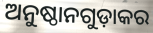
ଅନୁଷ୍ଠାନଗୁଡ଼ାକର